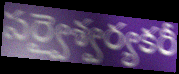
సర్వైశ్వర్యకరీ